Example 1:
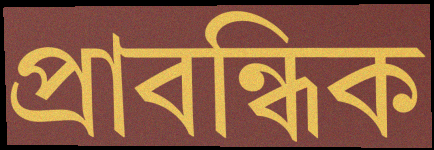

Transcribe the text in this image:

প্রাবন্ধিক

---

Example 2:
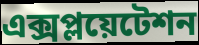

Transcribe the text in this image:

এক্সপ্লয়েটেশন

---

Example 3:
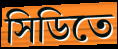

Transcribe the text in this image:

সিডিতে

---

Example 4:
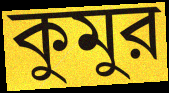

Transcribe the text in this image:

কুমুর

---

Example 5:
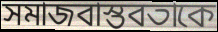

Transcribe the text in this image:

সমাজবাস্তবতাকে